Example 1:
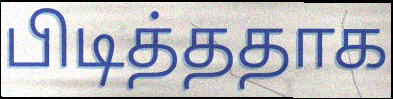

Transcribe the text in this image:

பிடித்ததாக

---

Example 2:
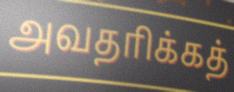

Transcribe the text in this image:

அவதரிக்கத்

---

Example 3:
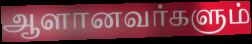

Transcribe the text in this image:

ஆளானவர்களும்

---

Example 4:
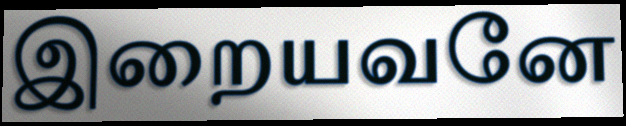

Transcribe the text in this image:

இறையவனே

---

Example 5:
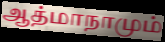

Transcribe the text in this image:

ஆத்மாநாமும்